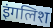
इंगलिश